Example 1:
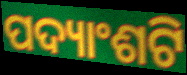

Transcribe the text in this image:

ପଦ୍ୟାଂଶଟି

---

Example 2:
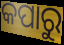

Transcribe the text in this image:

କପାରୁ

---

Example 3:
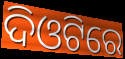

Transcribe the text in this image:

ଦିଓଟିରେ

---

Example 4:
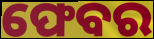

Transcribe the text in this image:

ଫେବର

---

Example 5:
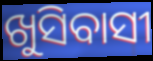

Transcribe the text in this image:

ଖୁସିବାସୀ